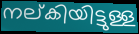
നല്കിയിട്ടുള്ള